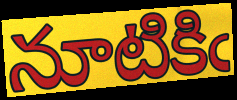
నూటికిఁ